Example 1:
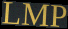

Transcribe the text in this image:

LMP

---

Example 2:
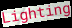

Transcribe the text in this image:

Lighting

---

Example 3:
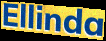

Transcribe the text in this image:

Ellinda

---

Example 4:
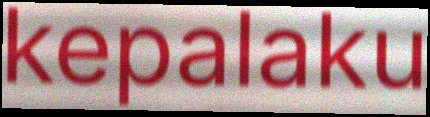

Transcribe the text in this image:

kepalaku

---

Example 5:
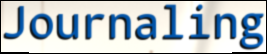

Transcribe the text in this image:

Journaling